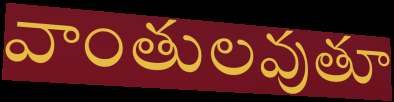
వాంతులవుతూ